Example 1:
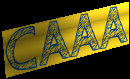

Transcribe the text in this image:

CAAA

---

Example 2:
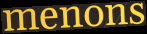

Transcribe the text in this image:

menons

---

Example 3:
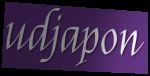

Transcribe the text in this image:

udjapon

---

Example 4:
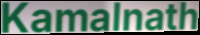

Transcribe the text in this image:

Kamalnath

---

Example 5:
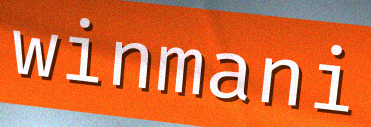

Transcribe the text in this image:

winmani